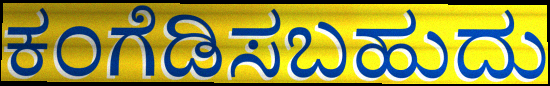
ಕಂಗೆಡಿಸಬಹುದು